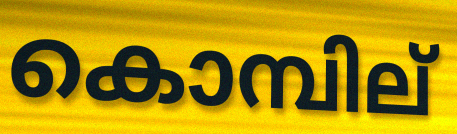
കൊമ്പില്